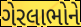
ગેરલાભોને